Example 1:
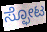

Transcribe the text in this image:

ಸ್ಫೋಟ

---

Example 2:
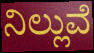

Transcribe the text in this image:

ನಿಲ್ಲುವೆ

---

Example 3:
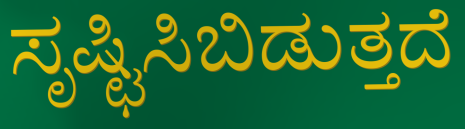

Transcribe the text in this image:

ಸೃಷ್ಟಿಸಿಬಿಡುತ್ತದೆ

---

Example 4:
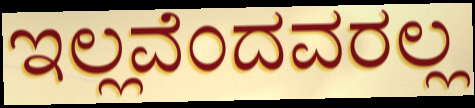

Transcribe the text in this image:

ಇಲ್ಲವೆಂದವರಲ್ಲ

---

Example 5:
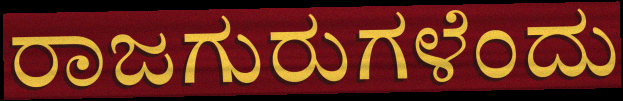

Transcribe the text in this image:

ರಾಜಗುರುಗಳೆಂದು